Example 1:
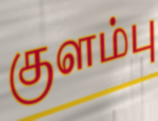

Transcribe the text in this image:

குளம்பு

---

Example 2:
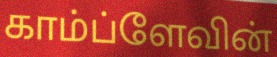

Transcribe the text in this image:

காம்ப்ளேவின்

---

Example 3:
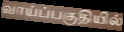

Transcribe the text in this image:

வாய்ப்பகுதியில்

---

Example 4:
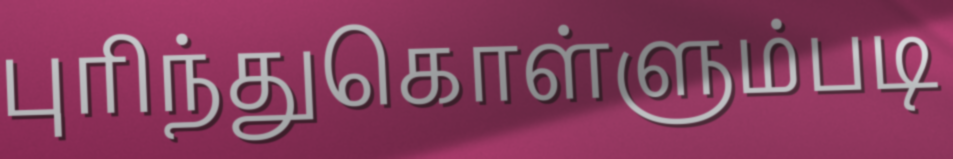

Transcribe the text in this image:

புரிந்துகொள்ளும்படி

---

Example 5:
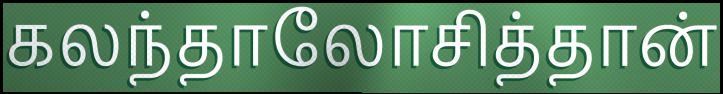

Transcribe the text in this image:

கலந்தாலோசித்தான்